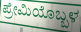
ಪ್ರೇಮಿಯೊಬ್ಬಳ